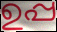
ഉപ്പ